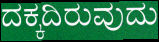
ದಕ್ಕದಿರುವುದು